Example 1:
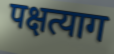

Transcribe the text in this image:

पक्षत्याग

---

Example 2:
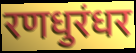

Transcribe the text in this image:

रणधुरंधर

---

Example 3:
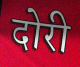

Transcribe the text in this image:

दोरी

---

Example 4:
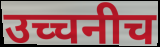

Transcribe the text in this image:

उच्चनीच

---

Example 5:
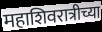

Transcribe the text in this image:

महाशिवरात्रीच्या